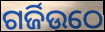
ଗର୍ଜିଉଠେ